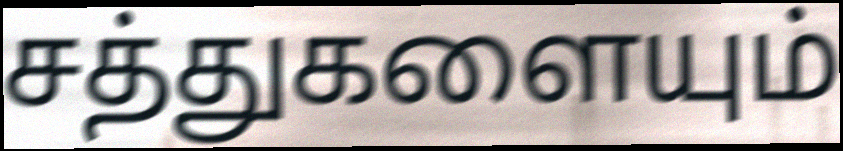
சத்துகளையும்